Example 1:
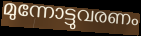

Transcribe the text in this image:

മുന്നോട്ടുവരണം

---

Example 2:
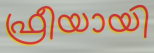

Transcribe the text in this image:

ഫ്രീയായി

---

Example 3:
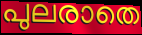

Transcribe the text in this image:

പുലരാതെ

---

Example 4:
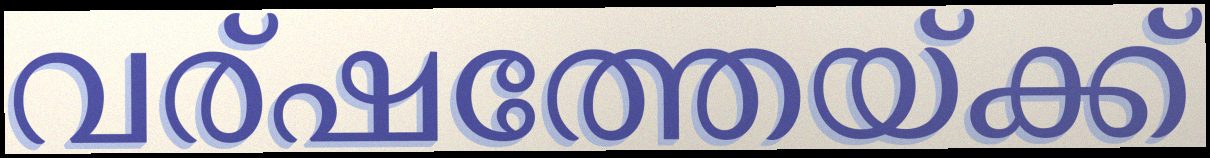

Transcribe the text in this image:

വര്ഷത്തേയ്ക്ക്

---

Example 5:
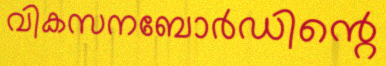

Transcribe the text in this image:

വികസനബോർഡിന്റെ